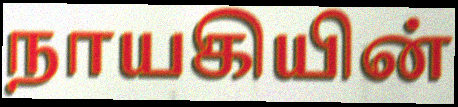
நாயகியின்